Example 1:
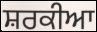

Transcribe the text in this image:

ਸ਼ਰਕੀਆ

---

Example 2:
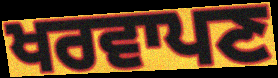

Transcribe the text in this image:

ਖਰਵਾਪਣ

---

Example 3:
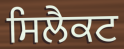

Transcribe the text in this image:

ਸਿਲੈਕਟ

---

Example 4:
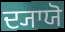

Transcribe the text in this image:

ਦ੍ਯਾਯੋ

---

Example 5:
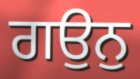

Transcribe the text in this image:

ਗਉਨੁ